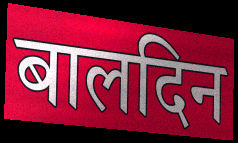
बालदिन